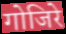
गोजिरे